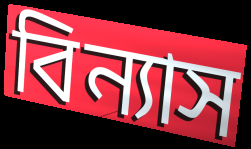
বিন্যাস